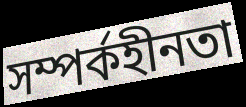
সম্পর্কহীনতা